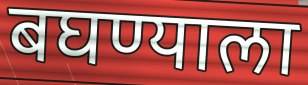
बघण्याला